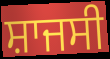
ਸ਼ਾਜਸੀ